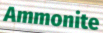
Ammonite